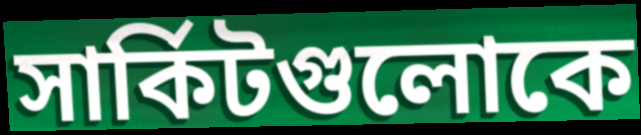
সার্কিটগুলোকে